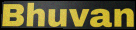
Bhuvan